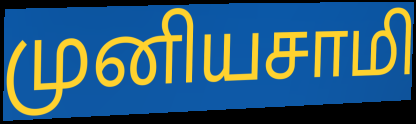
முனியசாமி